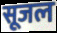
सूजल